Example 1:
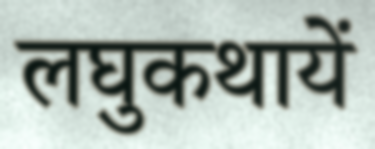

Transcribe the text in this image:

लघुकथायें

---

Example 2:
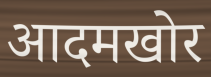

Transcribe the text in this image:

आदमखोर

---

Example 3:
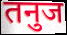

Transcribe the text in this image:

तनुज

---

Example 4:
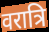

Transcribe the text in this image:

वरात्रि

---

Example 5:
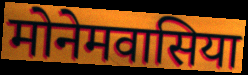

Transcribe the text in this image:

मोनेमवासिया